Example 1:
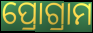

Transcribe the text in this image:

ପ୍ରୋଗ୍ରାମ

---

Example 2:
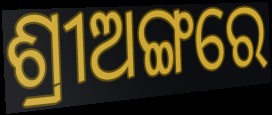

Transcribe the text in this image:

ଶ୍ରୀଅଙ୍ଗରେ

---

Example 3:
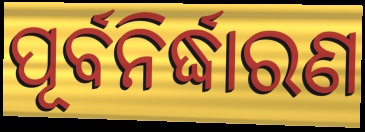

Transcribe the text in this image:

ପୂର୍ବନିର୍ଦ୍ଧାରଣ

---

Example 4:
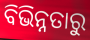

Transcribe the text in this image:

ବିଭିନ୍ନତାରୁ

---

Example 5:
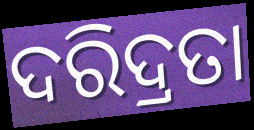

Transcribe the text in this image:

ଦରିଦ୍ରତା